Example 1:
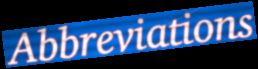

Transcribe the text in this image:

Abbreviations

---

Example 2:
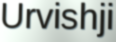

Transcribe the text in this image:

Urvishji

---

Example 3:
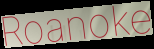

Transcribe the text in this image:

Roanoke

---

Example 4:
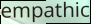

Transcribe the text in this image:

empathic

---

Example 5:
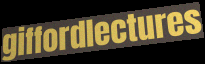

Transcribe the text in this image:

giffordlectures